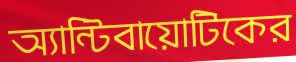
অ্যান্টিবায়োটিকের